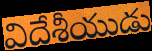
విదేశీయుడు